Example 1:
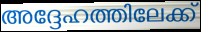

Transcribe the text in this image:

അദ്ദേഹത്തിലേക്ക്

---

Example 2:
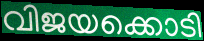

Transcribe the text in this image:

വിജയക്കൊടി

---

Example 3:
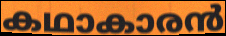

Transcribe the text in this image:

കഥാകാരൻ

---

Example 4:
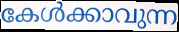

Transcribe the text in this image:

കേൾക്കാവുന്ന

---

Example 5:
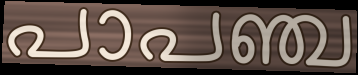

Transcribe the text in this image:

പാപഞ്ച